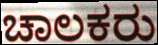
ಚಾಲಕರು